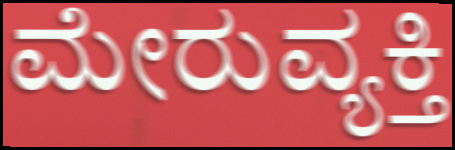
ಮೇರುವ್ಯಕ್ತಿ